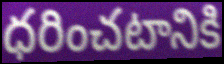
ధరించటానికి